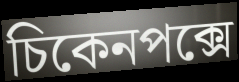
চিকেনপক্সে